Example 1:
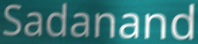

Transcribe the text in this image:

Sadanand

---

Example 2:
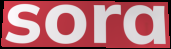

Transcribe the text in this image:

sora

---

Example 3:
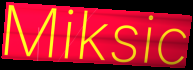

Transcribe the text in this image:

Miksic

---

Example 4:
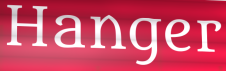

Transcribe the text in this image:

Hanger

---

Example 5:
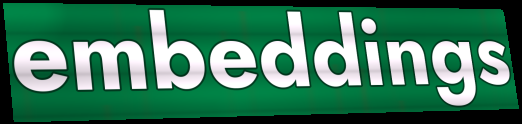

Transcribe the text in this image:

embeddings